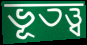
ভূতত্ত্ব